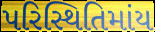
પરિસ્થિતિમાંય